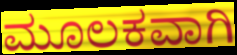
ಮೂಲಕವಾಗಿ